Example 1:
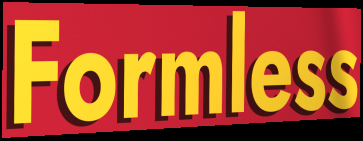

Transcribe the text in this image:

Formless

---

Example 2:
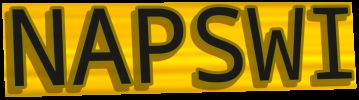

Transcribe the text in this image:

NAPSWI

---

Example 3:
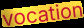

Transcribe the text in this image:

vocation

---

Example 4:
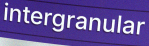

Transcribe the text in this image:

intergranular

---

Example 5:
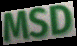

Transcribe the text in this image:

MSD